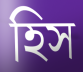
হিস